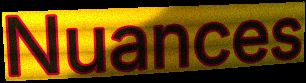
Nuances